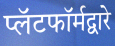
प्लॅटफॉर्मद्वारे